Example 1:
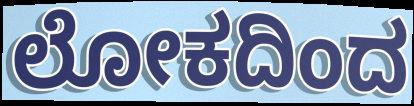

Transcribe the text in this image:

ಲೋಕದಿಂದ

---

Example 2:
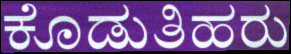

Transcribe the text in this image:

ಕೊಡುತಿಹರು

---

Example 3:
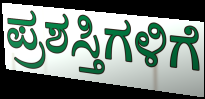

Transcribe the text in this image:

ಪ್ರಶಸ್ತಿಗಳಿಗೆ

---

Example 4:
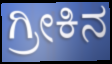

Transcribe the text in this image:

ಗ್ರೀಕಿನ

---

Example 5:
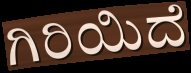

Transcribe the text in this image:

ಗಿರಿಯಿದೆ